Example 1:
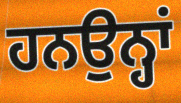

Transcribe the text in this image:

ਹਨਉਨ੍ਹਾਂ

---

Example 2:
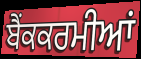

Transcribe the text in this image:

ਬੈਂਕਕਰਮੀਆਂ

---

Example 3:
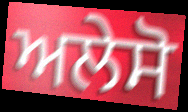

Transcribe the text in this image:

ਅਲੇਸੋ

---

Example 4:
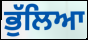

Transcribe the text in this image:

ਭੁੱਲਿਆ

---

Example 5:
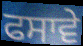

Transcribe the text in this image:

ਫਸਾਵੇ